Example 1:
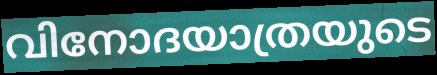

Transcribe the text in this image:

വിനോദയാത്രയുടെ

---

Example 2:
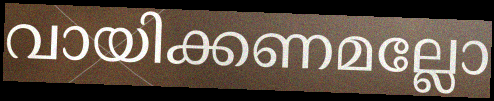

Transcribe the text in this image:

വായിക്കണമല്ലോ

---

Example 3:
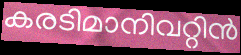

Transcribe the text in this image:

കരടിമാനിവറ്റിൻ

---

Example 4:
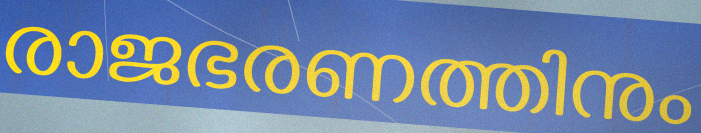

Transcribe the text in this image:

രാജഭരണത്തിനും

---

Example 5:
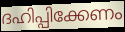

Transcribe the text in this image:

ദഹിപ്പിക്കേണം